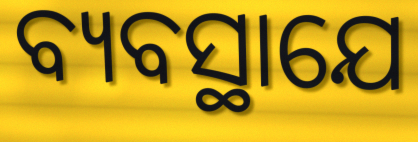
ବ୍ୟବସ୍ଥାଯେ